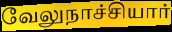
வேலுநாச்சியார்